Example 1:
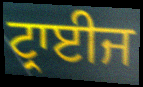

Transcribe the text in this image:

ਟ੍ਰਾਈਜ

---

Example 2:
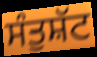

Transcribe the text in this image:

ਸੰਤੁਸ਼ੱਟ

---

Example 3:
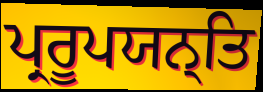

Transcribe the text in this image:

ਪ੍ਰਰੂਪਯਨ੍ਤਿ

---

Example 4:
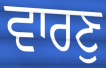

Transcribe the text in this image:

ਵਾਰਣੁ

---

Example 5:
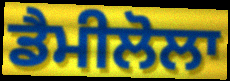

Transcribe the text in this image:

ਡੈਮੀਲੋਲਾ